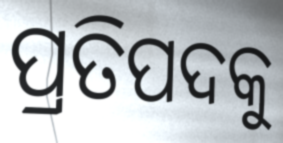
ପ୍ରତିପଦକୁ